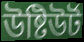
উষ্টিউৰ্ট